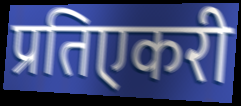
प्रतिएकरी